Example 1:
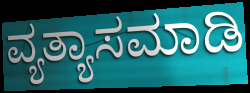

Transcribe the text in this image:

ವ್ಯತ್ಯಾಸಮಾಡಿ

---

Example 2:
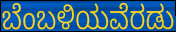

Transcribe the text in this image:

ಬೆಂಬಳಿಯವೆರಡು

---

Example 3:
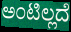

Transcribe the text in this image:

ಅಂಟಿಲ್ಲದೆ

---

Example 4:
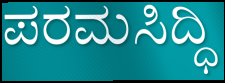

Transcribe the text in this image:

ಪರಮಸಿದ್ಧಿ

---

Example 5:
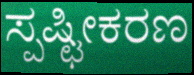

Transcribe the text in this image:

ಸ್ಪಷ್ಟೀಕರಣ